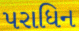
પરાધિન